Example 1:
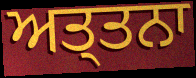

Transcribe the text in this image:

ਅਤ੍ਤਨਾ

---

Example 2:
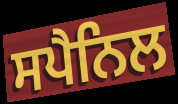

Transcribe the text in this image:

ਸਪੈਨਿਲ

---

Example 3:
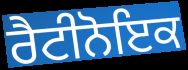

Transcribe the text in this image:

ਰੈਟੀਨੋਇਕ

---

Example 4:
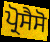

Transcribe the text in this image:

ਪ੍ਰੋਸੈਸੋ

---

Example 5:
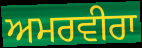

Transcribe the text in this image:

ਅਮਰਵੀਰਾ